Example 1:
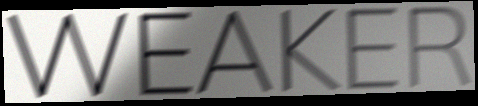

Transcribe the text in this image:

WEAKER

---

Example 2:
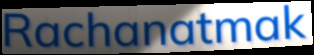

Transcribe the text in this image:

Rachanatmak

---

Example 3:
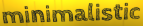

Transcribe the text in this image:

minimalistic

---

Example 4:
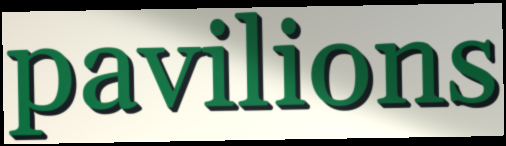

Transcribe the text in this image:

pavilions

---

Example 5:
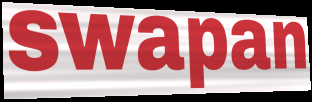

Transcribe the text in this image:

swapan